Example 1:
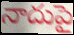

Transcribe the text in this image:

నాదుపై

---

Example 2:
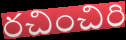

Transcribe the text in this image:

రచించిరి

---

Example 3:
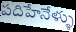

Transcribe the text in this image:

పదిహేనేళ్ళు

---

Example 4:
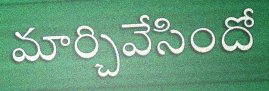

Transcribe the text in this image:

మార్చివేసిందో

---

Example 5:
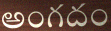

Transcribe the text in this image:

అంగదం